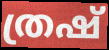
ത്രഷ്